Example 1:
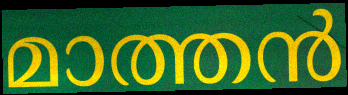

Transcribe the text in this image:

മാത്തൻ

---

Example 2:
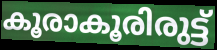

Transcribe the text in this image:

കൂരാകൂരിരുട്ട്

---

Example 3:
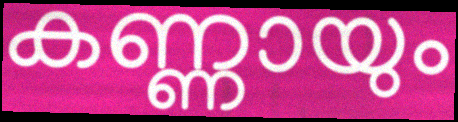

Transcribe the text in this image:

കണ്ണായും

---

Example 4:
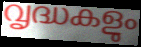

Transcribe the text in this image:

വൃദ്ധകളും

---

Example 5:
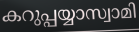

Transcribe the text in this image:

കറുപ്പയ്യാസ്വാമി